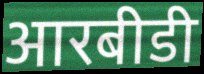
आरबीडी